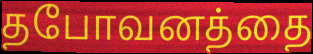
தபோவனத்தை